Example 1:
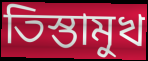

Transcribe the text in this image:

তিস্তামুখ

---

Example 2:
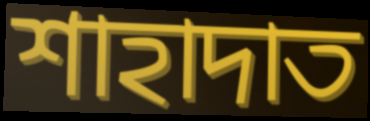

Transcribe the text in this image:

শাহাদাত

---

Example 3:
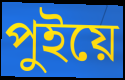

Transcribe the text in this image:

পুইয়ে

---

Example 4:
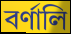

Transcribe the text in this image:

বর্ণালি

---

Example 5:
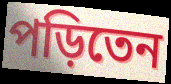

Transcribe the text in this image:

পড়িতেন